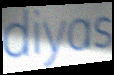
diyas